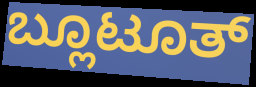
ಬ್ಲೂಟೂತ್